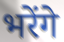
भरेंगे